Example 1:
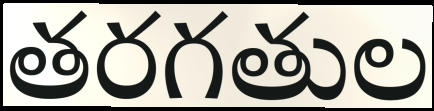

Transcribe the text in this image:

తరగతుల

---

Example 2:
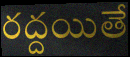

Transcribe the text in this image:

రద్దయితే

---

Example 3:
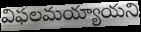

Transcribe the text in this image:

విఫలమయ్యాయని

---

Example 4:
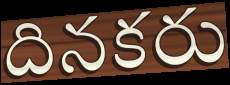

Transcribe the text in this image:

దినకరు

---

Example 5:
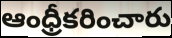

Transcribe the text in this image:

ఆంధ్రీకరించారు